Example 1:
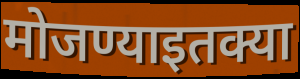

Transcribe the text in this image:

मोजण्याइतक्या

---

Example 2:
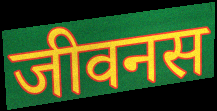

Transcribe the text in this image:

जीवनस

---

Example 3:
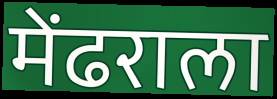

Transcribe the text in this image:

मेंढराला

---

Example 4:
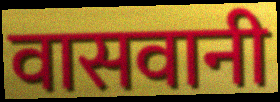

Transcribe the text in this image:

वासवानी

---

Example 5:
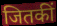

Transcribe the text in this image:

जितकीं